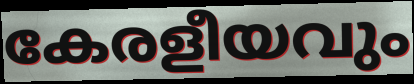
കേരളീയവും